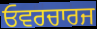
ਓਵਰਚਾਰਜ